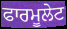
ਫਾਰਮੂਲੇਟ